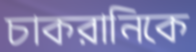
চাকরানিকে